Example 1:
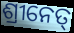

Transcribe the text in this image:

ଶ୍ରୀନେତ୍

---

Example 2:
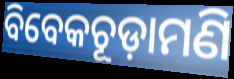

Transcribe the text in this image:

ବିବେକଚୂଡ଼ାମଣି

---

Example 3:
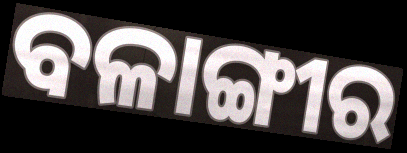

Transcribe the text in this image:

ବଳାଙ୍ଗୀର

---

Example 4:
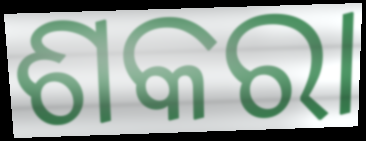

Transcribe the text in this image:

ଶକରା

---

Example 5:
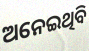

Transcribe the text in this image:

ଅନେଇଥିବି